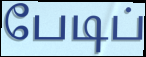
பேடிப்